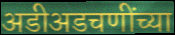
अडीअडचणींच्या